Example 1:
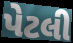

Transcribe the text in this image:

પેટલી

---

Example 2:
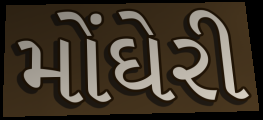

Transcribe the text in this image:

મોંઘેરી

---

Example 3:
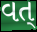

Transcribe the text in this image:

વત્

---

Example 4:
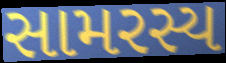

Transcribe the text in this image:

સામરસ્ય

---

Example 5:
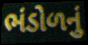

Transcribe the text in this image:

ભંડોળનું